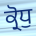
ਕ੍ਰੋਧੁ